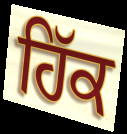
ਹਿੱਕ